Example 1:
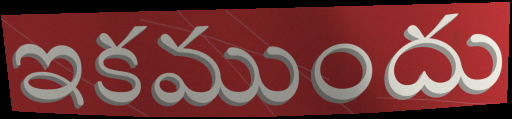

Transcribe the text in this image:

ఇకముందు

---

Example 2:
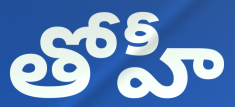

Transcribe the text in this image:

తోహీ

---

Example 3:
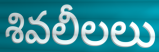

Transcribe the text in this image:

శివలీలలు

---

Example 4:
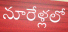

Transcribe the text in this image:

నూరేళ్లలో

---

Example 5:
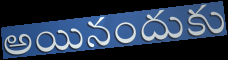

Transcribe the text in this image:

అయినందుకు